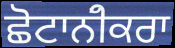
ਛੋਟਾਨੀੱਕਰਾ